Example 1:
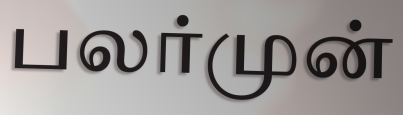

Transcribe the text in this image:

பலர்முன்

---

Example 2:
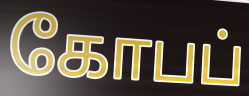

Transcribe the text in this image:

கோபப்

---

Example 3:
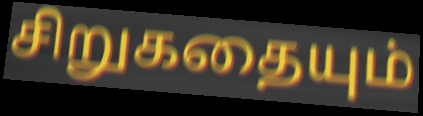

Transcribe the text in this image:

சிறுகதையும்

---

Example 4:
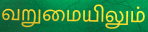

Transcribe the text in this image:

வறுமையிலும்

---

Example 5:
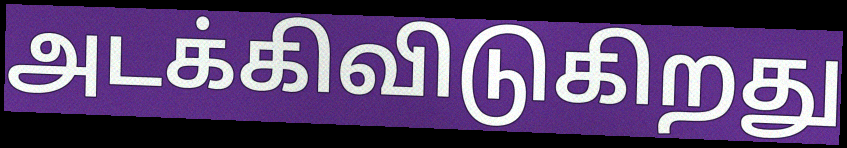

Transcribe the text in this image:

அடக்கிவிடுகிறது